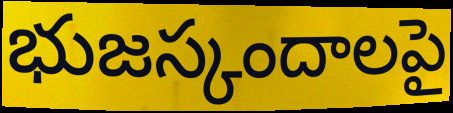
భుజస్కందాలపై